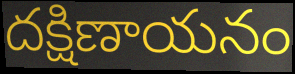
దక్షిణాయనం